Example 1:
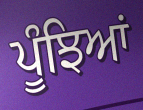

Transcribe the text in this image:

ਪੂੰਝਿਆਂ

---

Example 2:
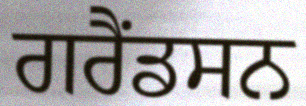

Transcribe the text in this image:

ਗਰੈਂਡਸਨ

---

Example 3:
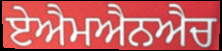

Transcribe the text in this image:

ਏਐਮਐਨਐਚ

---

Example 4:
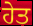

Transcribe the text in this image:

ਹੇਤ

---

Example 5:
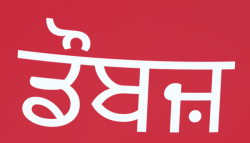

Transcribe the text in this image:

ਡੌਬਜ਼